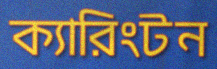
ক্যারিংটন